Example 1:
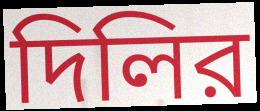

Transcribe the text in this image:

দিলির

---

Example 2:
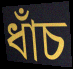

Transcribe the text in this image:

ধাঁচ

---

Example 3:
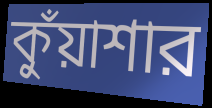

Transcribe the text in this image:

কুঁয়াশার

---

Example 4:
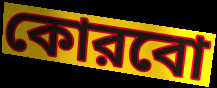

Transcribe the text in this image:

কোরবো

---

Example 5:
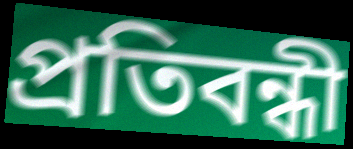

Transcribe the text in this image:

প্রতিবন্ধী